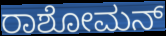
ರಾಶೋಮನ್